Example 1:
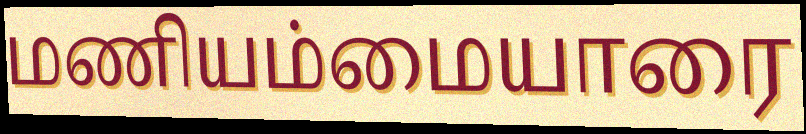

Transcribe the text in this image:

மணியம்மையாரை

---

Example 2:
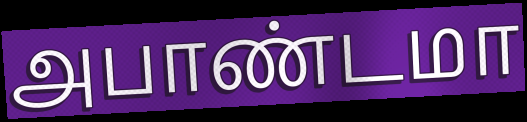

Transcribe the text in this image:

அபாண்டமா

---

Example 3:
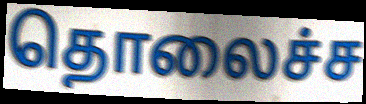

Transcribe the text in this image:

தொலைச்ச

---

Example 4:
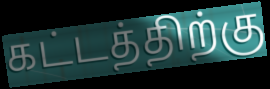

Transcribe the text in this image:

கட்டத்திற்கு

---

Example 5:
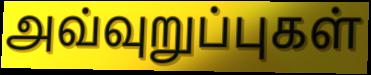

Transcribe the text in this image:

அவ்வுறுப்புகள்